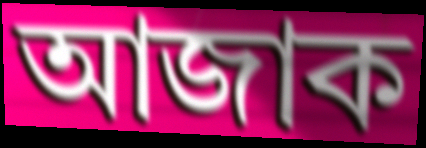
আজাক